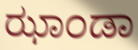
ಝಾಂಡಾ